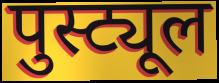
पुस्ट्यूल